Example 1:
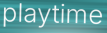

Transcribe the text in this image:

playtime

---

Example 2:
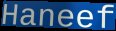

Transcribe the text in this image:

Haneef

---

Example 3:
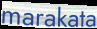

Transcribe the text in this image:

marakata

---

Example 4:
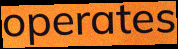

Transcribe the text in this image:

operates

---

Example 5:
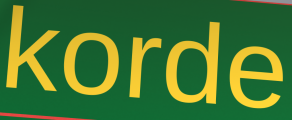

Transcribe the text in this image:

korde